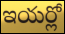
ఇయర్లో